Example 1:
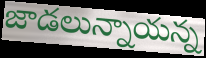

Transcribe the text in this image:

జాడలున్నాయన్న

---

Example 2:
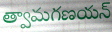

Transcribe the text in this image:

త్వామగణయన్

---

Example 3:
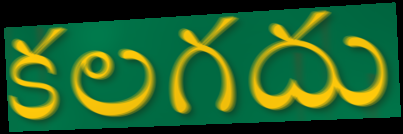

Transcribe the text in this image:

కలగదు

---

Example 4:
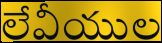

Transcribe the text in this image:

లేవీయుల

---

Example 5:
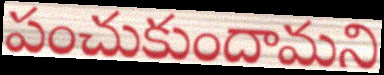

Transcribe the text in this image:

పంచుకుందామని